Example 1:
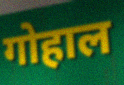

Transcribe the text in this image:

गोहाल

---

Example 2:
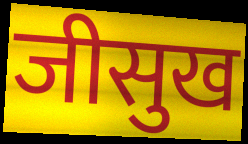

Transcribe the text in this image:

जीसुख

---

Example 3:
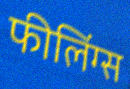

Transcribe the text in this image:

फीलिंग्स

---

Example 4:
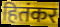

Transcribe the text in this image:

हितंकर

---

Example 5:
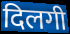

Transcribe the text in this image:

दिलगी